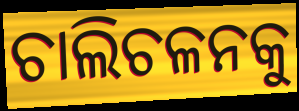
ଚାଲିଚଳନକୁ